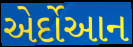
એર્દોઆન